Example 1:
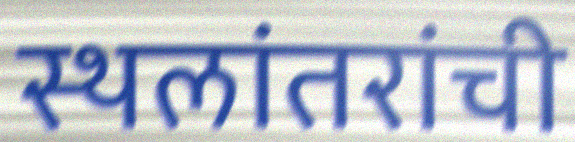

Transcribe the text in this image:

स्थलांतरांची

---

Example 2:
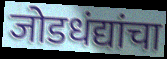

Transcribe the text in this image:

जोडधंद्यांचा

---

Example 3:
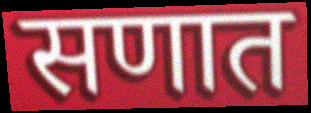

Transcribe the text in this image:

सणात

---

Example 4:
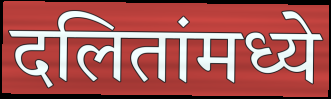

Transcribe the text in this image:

दलितांमध्ये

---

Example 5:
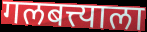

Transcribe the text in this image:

गलबत्त्याला